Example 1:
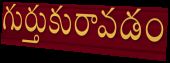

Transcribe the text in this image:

గుర్తుకురావడం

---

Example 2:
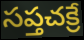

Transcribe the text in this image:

సప్తచక్రే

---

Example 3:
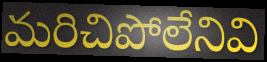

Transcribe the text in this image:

మరిచిపోలేనివి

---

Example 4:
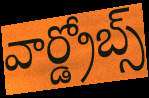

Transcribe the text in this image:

వార్డ్రోబ్స్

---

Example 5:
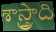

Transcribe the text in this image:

శాస్త్రాది